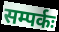
सम्पर्कः